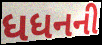
ધધનની